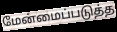
மேன்மைப்படுத்த